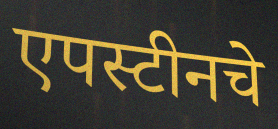
एपस्टीनचे